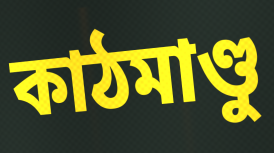
কাঠমাণ্ডু